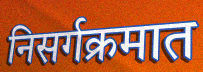
निसर्गक्रमात